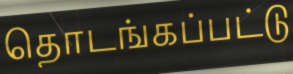
தொடங்கப்பட்டு